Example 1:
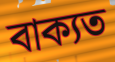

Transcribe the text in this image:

বাক্যত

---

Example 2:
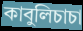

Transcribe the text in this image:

কাবুলিচাচা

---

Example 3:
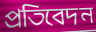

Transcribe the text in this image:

প্ৰতিবেদন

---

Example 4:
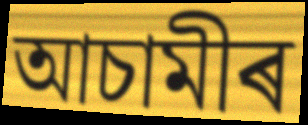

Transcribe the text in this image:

আচামীৰ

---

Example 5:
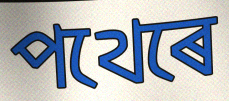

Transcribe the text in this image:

পথেৰে